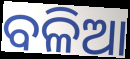
ବଳିଆ